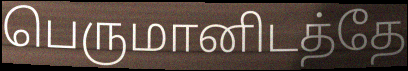
பெருமானிடத்தே